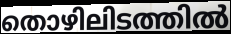
തൊഴിലിടത്തിൽ